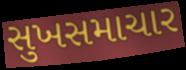
સુખસમાચાર